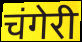
चंगेरी